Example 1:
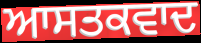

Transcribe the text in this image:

ਆਸਤਕਵਾਦ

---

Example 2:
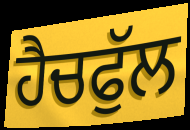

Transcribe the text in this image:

ਹੈਚਫੁੱਲ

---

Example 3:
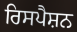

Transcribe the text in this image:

ਰਿਸਪੈਸ਼ਨ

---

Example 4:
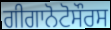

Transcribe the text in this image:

ਗੀਗਾਨੋਟੋਸੌਰਸ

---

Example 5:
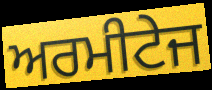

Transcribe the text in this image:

ਅਰਮੀਟੇਜ